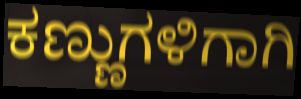
ಕಣ್ಣುಗಳಿಗಾಗಿ